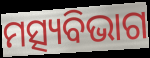
ମତ୍ସ୍ୟବିଭାଗ